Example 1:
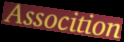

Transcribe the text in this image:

Assocition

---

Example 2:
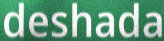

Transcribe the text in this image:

deshada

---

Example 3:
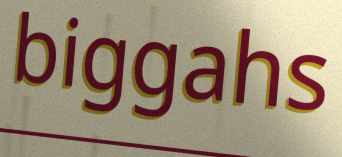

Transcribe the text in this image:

biggahs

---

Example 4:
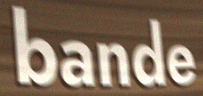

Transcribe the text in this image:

bande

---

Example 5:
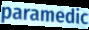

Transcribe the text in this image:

paramedic